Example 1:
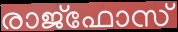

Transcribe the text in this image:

രാജ്ഫോസ്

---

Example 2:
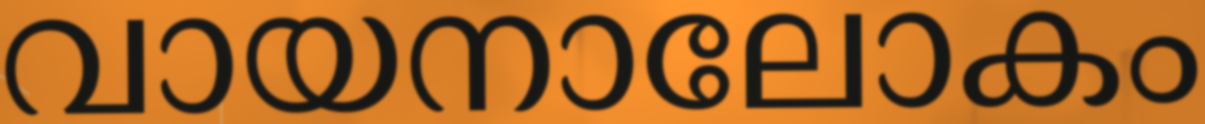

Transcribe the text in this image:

വായനാലോകം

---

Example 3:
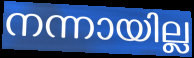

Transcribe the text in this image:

നന്നായില്ല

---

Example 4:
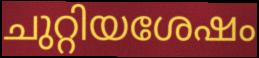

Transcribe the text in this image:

ചുറ്റിയശേഷം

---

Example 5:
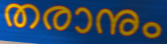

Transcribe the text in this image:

തരാനും